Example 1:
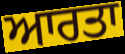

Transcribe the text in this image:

ਆਰਤਾ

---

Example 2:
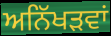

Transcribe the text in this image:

ਅਨਿੱਖੜਵਾਂ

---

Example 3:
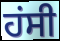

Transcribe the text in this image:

ਹਂਸੀ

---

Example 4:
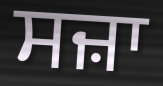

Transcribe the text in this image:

ਸਜ਼ਾ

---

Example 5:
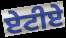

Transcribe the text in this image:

ਏਟੀਏ